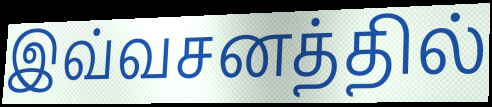
இவ்வசனத்தில்